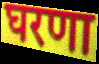
घरणा